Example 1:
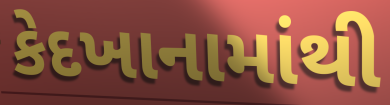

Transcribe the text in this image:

કેદખાનામાંથી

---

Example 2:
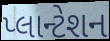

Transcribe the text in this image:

પ્લાન્ટેશન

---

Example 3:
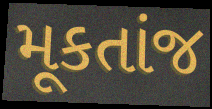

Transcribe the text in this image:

મૂકતાંજ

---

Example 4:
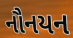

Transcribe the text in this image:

નૌનયન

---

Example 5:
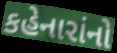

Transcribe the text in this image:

કહેનારાંનો